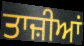
ਤਾਜ਼ੀਆਂ